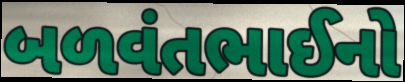
બળવંતભાઈનો